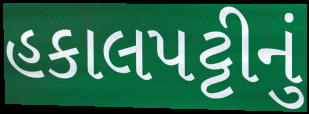
હકાલપટ્ટીનું